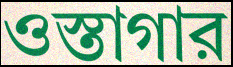
ওস্তাগার